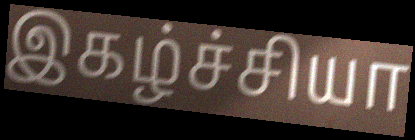
இகழ்ச்சியா